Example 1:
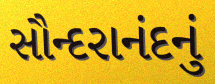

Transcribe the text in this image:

સૌન્દરાનંદનું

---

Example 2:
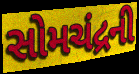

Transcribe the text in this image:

સોમચંદ્રની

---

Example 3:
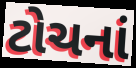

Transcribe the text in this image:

ટોચનાં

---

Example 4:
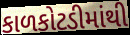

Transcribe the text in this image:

કાળકોટડીમાંથી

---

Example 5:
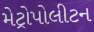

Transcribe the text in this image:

મેટ્રોપોલીટન